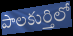
పాలకుర్తిలో